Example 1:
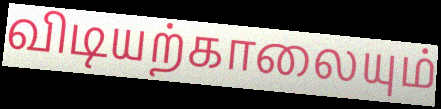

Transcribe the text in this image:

விடியற்காலையும்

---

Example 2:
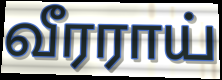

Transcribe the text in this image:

வீரராய்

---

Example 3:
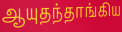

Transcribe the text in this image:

ஆயுதந்தாங்கிய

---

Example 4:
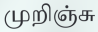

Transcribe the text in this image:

முறிஞ்சு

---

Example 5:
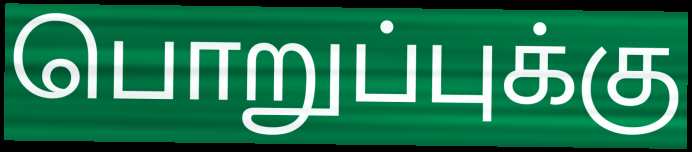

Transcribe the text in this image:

பொறுப்புக்கு